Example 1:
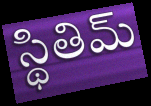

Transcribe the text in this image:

స్థితిమ్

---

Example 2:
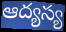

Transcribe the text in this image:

ఆద్యస్య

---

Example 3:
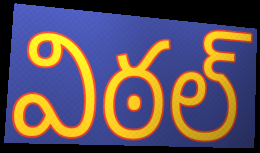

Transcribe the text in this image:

విఠల్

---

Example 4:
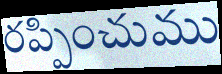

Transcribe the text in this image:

రప్పించుము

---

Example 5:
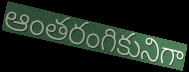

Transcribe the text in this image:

ఆంతరంగికునిగా